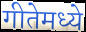
गीतेमध्ये